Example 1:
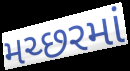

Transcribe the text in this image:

મચ્છરમાં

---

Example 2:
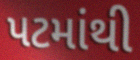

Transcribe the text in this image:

પટમાંથી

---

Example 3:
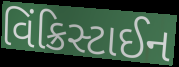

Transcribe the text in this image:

વિંક્રિસ્ટાઈન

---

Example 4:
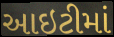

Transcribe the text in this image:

આઇટીમાં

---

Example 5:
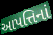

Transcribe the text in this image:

આપત્તિનાં